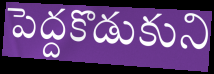
పెద్దకొడుకుని